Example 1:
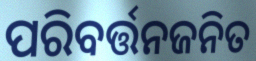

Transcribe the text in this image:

ପରିବର୍ତ୍ତନଜନିତ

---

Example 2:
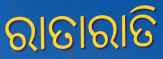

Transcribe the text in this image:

ରାତାରାତି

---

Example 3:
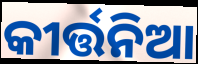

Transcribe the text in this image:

କୀର୍ତ୍ତନିଆ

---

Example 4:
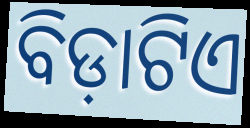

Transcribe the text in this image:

ବିଡ଼ାଟିଏ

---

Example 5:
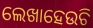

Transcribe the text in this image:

ଲେଖାହେଉଚି